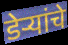
डेर्‍यांचे